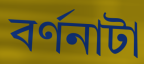
বর্ণনাটা